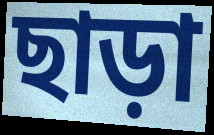
ছাড়া